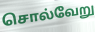
சொல்வேறு